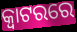
କ୍ୱାଟରରେ